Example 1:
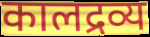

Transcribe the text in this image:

कालद्रव्य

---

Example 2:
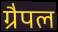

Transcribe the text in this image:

ग्रैपल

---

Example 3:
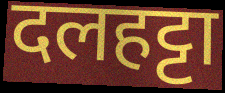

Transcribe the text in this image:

दलहट्टा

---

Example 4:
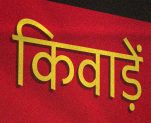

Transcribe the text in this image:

किवाड़ें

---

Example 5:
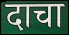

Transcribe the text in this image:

दाचा